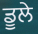
ਡੂਲੇ